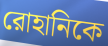
রোহানিকে